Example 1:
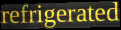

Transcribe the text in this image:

refrigerated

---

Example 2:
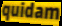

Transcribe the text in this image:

quidam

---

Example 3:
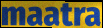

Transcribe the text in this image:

maatra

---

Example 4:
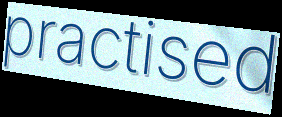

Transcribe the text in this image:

practised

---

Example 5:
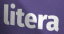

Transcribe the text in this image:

litera